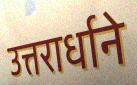
उत्तरार्धाने